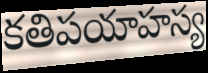
కతిపయాహస్య